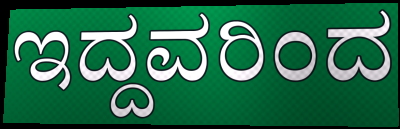
ಇದ್ದವರಿಂದ